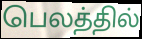
பெலத்தில்